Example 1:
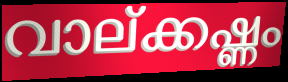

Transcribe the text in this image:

വാല്ക്കഷ്ണം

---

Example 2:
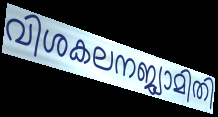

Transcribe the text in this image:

വിശകലനജ്യാമിതി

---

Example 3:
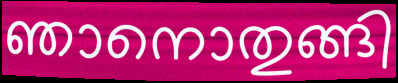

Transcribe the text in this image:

ഞാനൊതുങ്ങി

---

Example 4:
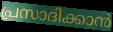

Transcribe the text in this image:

പ്രസാദിക്കാൻ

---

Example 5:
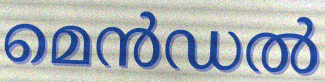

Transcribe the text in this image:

മെൻഡൽ